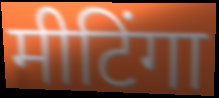
मीटिंगा